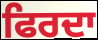
ਫਿਰਦਾ